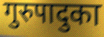
गुरुपादुका